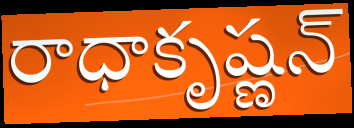
రాధాకృష్ణన్